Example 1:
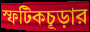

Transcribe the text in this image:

স্ফটিকচূড়ার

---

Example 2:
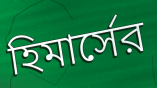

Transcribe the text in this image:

হিমার্সের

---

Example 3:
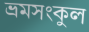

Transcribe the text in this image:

ভ্রমসংকুল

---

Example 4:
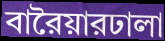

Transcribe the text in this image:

বারৈয়ারঢালা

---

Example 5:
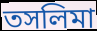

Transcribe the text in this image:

তসলিমা